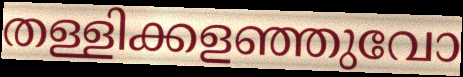
തള്ളിക്കളഞ്ഞുവോ